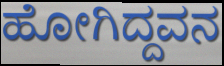
ಹೋಗಿದ್ದವನ